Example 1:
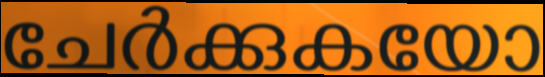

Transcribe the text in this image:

ചേർക്കുകയോ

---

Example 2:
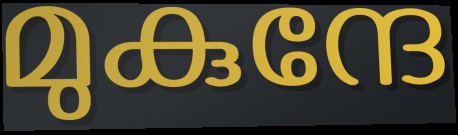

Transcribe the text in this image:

മുകുന്ദേ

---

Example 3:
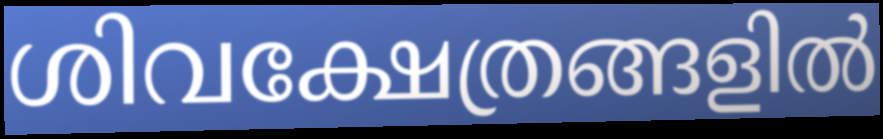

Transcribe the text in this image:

ശിവക്ഷേത്രങ്ങളിൽ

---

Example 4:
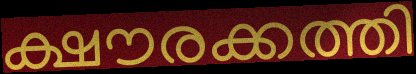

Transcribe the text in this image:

ക്ഷൗരക്കത്തി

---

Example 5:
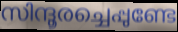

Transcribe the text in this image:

സിന്ദൂരച്ചെപ്പുണ്ടേ